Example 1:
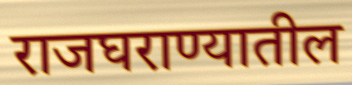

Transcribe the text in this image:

राजघराण्यातील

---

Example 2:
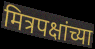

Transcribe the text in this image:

मित्रपक्षांच्या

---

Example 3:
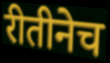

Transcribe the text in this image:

रीतीनेच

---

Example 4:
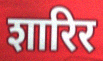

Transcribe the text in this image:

शारिर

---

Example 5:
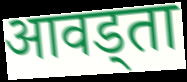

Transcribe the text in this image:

आवड्ता